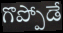
గొప్పోడే